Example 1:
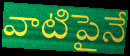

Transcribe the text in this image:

వాటిపైనే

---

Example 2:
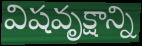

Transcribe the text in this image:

విషవృక్షాన్ని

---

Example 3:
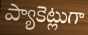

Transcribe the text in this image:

ప్యాకెట్లుగా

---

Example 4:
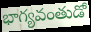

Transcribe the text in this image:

భాగ్యవంతుడో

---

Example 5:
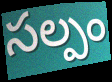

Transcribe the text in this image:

సల్పం